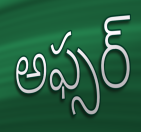
అఫ్సర్